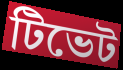
টিভেট